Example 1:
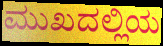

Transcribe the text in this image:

ಮುಖದಲ್ಲಿಯ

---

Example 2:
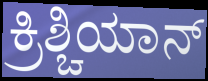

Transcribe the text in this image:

ಕ್ರಿಶ್ಚಿಯಾನ್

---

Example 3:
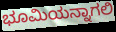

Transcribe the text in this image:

ಭೂಮಿಯನ್ನಾಗಲಿ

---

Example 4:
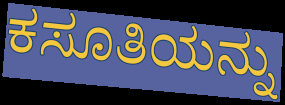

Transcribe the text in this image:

ಕಸೂತಿಯನ್ನು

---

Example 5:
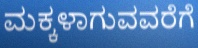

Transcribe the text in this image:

ಮಕ್ಕಳಾಗುವವರೆಗೆ